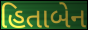
હિતાબેન